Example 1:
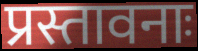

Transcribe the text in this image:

प्रस्तावनाः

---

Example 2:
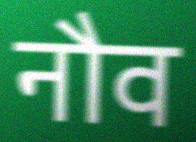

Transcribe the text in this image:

नौव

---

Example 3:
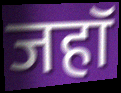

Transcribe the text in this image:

जहॉ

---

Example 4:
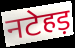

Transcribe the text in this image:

नटेहड़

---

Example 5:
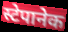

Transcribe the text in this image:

स्टेपानेक